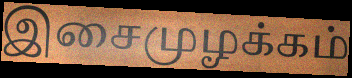
இசைமுழக்கம்